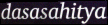
dasasahitya